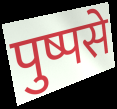
पुष्पसे